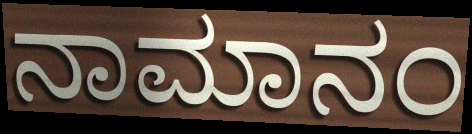
ನಾಮಾನಂ